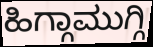
ಹಿಗ್ಗಾಮುಗ್ಗಿ